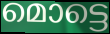
മൊട്ടെ